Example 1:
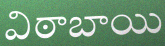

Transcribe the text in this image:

విఠాబాయి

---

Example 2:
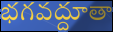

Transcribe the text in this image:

భగవద్దూతా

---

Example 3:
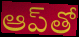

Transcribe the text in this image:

ఆప్‌తో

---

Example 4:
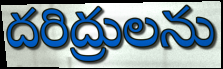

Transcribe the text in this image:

దరిద్రులను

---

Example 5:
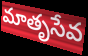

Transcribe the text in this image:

మాతృసేవ